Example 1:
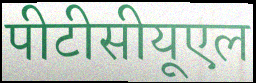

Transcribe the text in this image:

पीटीसीयूएल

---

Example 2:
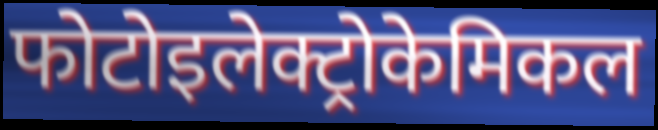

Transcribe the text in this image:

फोटोइलेक्ट्रोकेमिकल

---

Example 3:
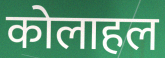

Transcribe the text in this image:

कोलाहल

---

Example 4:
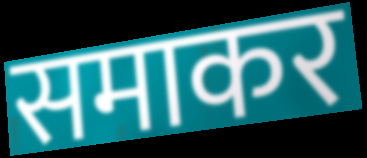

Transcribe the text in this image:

समाकर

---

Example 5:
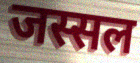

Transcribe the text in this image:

जस्सल